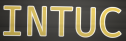
INTUC